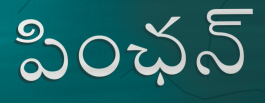
పింఛన్